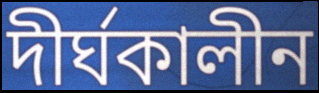
দীর্ঘকালীন